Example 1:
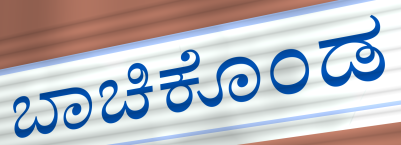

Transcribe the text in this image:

ಬಾಚಿಕೊಂಡ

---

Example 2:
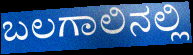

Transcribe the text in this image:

ಬಲಗಾಲಿನಲ್ಲಿ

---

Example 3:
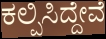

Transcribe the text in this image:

ಕಲ್ಪಿಸಿದ್ದೇವೆ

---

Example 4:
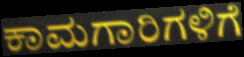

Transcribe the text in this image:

ಕಾಮಗಾರಿಗಳಿಗೆ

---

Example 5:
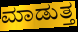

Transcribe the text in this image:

ಮಾಡುತ್ತ